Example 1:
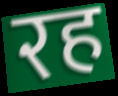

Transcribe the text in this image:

रह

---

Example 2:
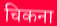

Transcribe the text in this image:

चिकना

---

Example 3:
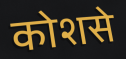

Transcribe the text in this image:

कोशसे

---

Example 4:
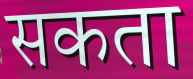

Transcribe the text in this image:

सकता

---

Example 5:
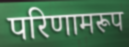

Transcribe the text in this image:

परिणामरूप